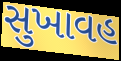
સુખાવહ